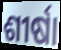
ଶୀର୍ଷା